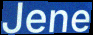
Jene